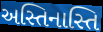
અસ્તિનાસ્તિ